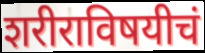
शरीराविषयीचं